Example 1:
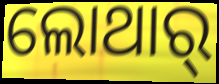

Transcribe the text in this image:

ଲୋଥାର୍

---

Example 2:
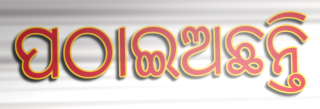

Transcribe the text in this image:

ପଠାଇଅଛନ୍ତି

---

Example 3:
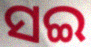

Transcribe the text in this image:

ସଇ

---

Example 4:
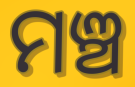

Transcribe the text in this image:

ମଞ୍ଚ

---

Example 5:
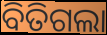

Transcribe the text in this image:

ବିତିଗଲା